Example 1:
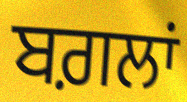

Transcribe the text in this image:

ਬਗ਼ਲਾਂ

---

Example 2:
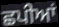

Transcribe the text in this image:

ਛਪੀਆਂ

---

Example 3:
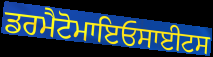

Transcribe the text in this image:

ਡਰਮੈਟੋਮਾਇਓਸਾਈਟਸ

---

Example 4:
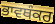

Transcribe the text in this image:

ਭਾਵਥੰਕਰ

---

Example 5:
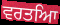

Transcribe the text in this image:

ਵਰਤਆਿ